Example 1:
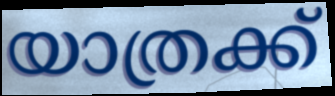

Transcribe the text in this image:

യാത്രക്ക്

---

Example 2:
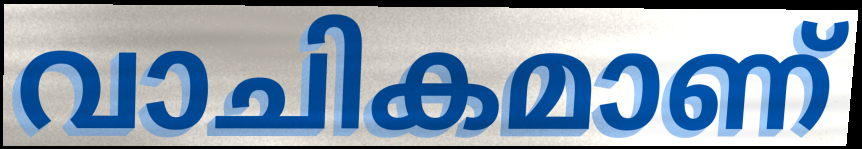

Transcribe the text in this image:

വാചികമാണ്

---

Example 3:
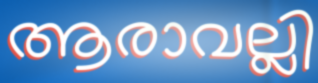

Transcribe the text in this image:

ആരാവല്ലി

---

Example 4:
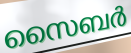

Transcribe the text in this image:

സൈബർ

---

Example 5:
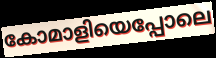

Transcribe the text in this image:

കോമാളിയെപ്പോലെ